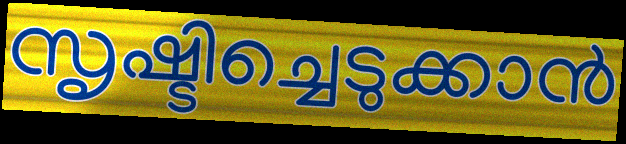
സൃഷ്ടിച്ചെടുക്കാൻ